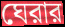
ঘেরার